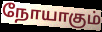
நோயாகும்